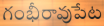
గంభీరావుపేట